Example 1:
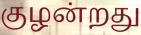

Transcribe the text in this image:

குழன்றது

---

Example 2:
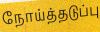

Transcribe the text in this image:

நோய்த்தடுப்பு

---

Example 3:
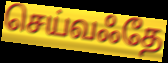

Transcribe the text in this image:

செய்வஃதே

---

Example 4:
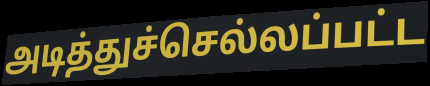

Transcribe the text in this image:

அடித்துச்செல்லப்பட்ட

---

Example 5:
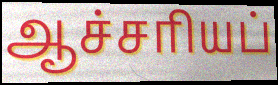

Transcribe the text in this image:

ஆச்சரியப்